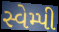
સ્વેમ્પી